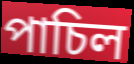
পাচিল